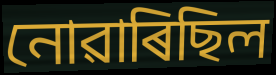
নোৱাৰিছিল